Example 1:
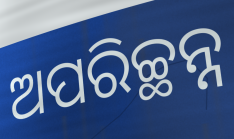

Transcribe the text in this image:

ଅପରିଚ୍ଛନ୍ନ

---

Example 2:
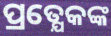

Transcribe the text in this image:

ପ୍ରତ୍ଯେକଙ୍କ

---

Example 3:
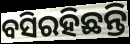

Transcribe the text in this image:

ବସିରହିଛନ୍ତି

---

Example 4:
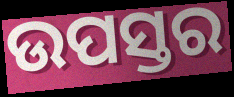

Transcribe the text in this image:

ଉପସ୍ତର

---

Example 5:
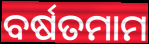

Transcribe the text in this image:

ବର୍ଷତମାମ